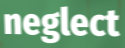
neglect